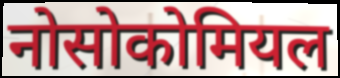
नोसोकोमियल